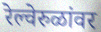
रेल्वेरुळांवर